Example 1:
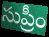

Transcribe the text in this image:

సుప్రీం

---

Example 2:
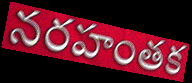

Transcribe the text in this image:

నరహంతక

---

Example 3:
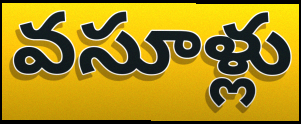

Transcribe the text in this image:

వసూళ్లు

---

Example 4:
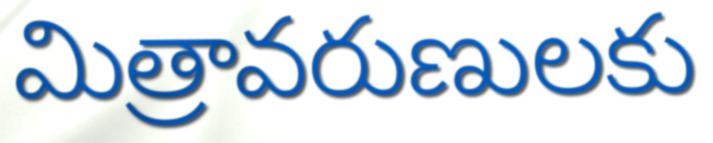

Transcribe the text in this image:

మిత్రావరుణులకు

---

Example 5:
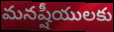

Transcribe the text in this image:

మనష్షీయులకు